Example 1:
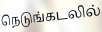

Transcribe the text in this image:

நெடுங்கடலில்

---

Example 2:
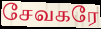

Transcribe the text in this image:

சேவகரே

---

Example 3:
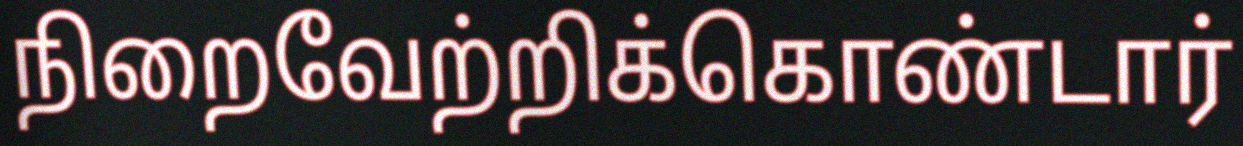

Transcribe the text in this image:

நிறைவேற்றிக்கொண்டார்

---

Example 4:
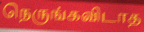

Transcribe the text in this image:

நெருங்கவிடாத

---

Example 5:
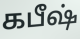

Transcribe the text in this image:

கபீஷ்